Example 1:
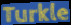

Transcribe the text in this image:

Turkle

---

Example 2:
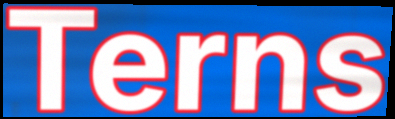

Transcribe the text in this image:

Terns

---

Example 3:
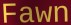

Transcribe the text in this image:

Fawn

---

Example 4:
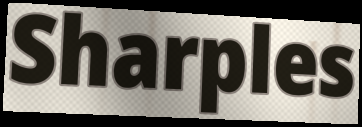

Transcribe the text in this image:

Sharples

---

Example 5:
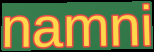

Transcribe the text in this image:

namni